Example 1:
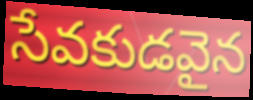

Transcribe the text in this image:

సేవకుడవైన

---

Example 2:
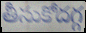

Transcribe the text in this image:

తీసుకోదగ్గ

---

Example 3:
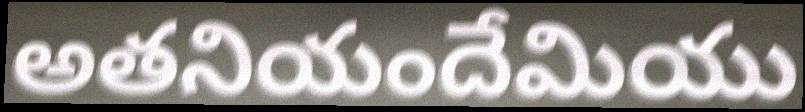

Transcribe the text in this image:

అతనియందేమియు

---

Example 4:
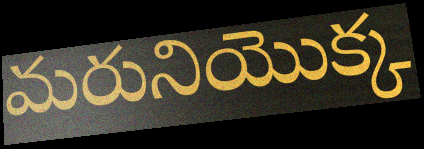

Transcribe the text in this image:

మరునియొక్క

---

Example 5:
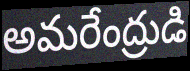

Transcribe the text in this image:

అమరేంద్రుడి